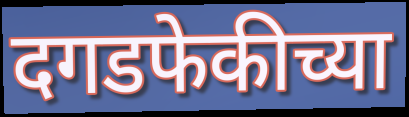
दगडफेकीच्या